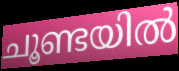
ചൂണ്ടയിൽ